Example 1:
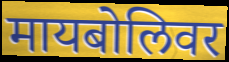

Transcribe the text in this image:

मायबोलिवर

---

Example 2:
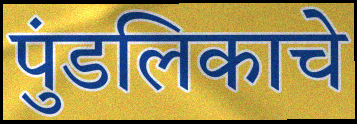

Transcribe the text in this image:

पुंडलिकाचे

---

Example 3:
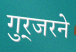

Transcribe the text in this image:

गुर्जरने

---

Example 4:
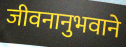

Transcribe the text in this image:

जीवनानुभवाने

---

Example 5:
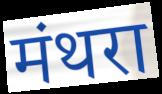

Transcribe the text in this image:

मंथरा